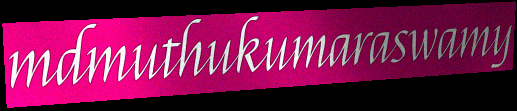
mdmuthukumaraswamy